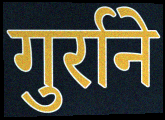
गुर्राने